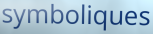
symboliques